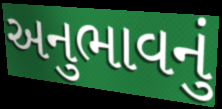
અનુભાવનું